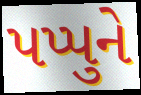
પપ્પુને